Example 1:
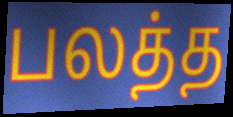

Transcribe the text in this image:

பலத்த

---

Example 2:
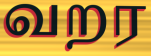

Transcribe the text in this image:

வறர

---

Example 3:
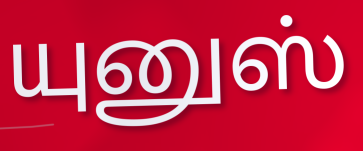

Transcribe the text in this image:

யுனுஸ்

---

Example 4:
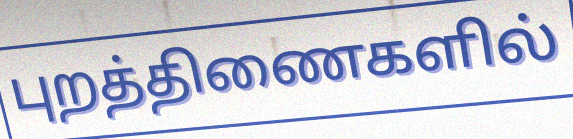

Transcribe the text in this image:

புறத்திணைகளில்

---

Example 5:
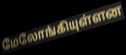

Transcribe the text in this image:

மேலோங்கியுள்ளன